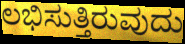
ಲಭಿಸುತ್ತಿರುವುದು